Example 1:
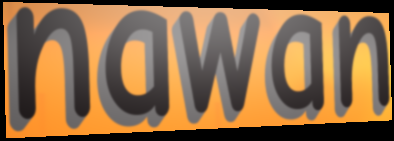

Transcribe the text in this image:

nawan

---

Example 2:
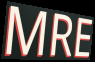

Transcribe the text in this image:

MRE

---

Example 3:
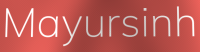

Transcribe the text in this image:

Mayursinh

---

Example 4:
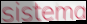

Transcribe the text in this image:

sistema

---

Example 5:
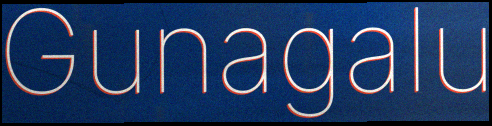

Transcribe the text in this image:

Gunagalu